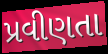
પ્રવીણતા